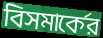
বিসমার্কের